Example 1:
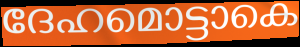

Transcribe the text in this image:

ദേഹമൊട്ടാകെ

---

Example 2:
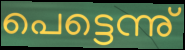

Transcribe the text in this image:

പെട്ടെന്നു്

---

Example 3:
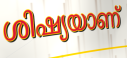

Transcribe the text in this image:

ശിഷ്യയാണ്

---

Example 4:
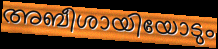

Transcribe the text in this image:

അബീശായിയോടും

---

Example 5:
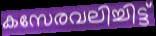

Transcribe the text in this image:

കസേരവലിച്ചിട്ട്